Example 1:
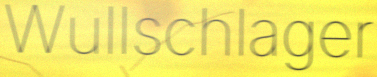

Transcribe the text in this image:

Wullschlager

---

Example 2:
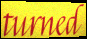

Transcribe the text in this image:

turned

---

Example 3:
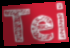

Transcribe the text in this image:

Tei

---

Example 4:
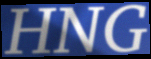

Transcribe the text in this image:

HNG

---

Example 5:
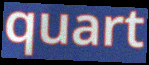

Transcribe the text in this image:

quart